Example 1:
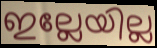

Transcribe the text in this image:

ഇല്ലേയില്ല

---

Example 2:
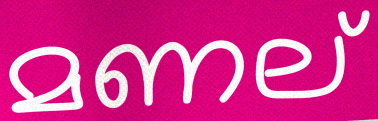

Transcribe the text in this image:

മണല്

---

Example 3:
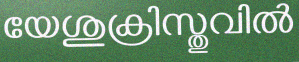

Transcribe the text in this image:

യേശുക്രിസ്തുവിൽ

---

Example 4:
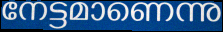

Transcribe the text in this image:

നേട്ടമാണെന്നു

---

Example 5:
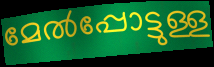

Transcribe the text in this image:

മേൽപ്പോട്ടുള്ള